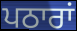
ਪਠਾਰਾਂ